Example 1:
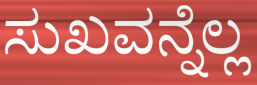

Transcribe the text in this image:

ಸುಖವನ್ನೆಲ್ಲ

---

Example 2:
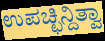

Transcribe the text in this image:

ಉಪಚ್ಛಿನ್ದಿತ್ವಾ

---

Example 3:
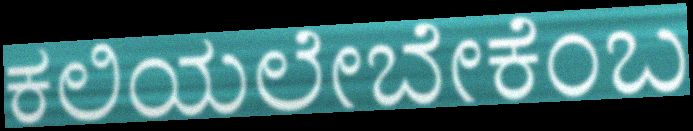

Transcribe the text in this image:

ಕಲಿಯಲೇಬೇಕೆಂಬ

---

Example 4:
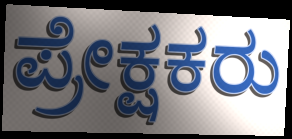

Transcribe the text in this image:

ಪ್ರೇಕ್ಷಕರು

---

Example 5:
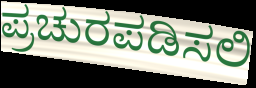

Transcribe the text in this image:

ಪ್ರಚುರಪಡಿಸಲಿ